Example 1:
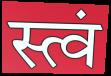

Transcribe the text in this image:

स्त्वं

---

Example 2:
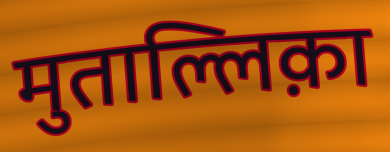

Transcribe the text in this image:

मुताल्लिक़ा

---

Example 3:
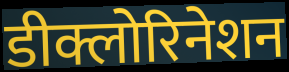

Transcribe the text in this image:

डीक्लोरिनेशन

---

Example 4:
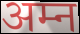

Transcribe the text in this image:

अम्न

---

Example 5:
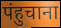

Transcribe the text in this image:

पंहुचाना